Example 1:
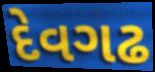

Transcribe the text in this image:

દેવગઢ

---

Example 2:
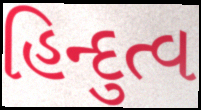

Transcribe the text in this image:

હિન્દુત્વ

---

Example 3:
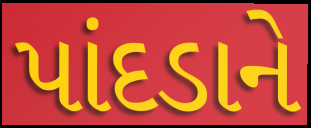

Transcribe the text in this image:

પાંદડાને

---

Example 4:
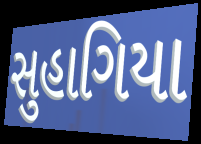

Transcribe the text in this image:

સુહાગિયા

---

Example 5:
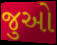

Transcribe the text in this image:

જુઓ